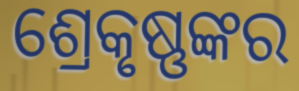
ଶ୍ରେକୃଷ୍ଣଙ୍କର